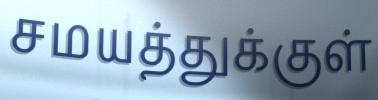
சமயத்துக்குள்